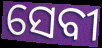
ସେବୀ